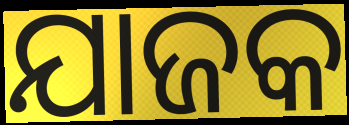
ଯାଜକ